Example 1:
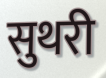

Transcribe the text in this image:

सुथरी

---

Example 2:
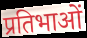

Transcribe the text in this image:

प्रतिभाओं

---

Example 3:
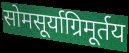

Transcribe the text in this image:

सोमसूर्याग्रिमूर्तय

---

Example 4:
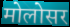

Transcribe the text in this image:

मोलोसर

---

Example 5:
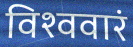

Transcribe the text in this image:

विश्ववारं